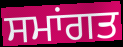
ਸਮਾਂਗਤ